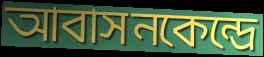
আবাসনকেন্দ্রে